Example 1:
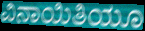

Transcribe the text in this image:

ವಿನಾಯಿತಿಯೂ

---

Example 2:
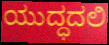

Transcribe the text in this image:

ಯುದ್ಧದಲಿ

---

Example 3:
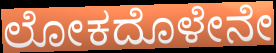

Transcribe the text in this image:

ಲೋಕದೊಳೇನೇ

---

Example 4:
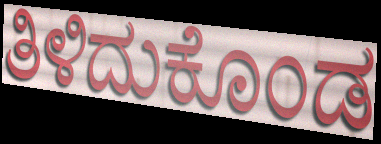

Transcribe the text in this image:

ತಿಳಿದುಕೊಂಡ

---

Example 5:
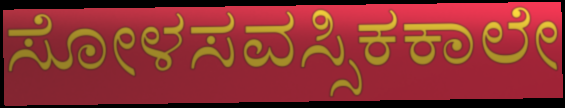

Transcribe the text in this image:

ಸೋಳಸವಸ್ಸಿಕಕಾಲೇ